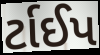
ર્ટાઈપ